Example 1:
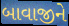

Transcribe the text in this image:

બાવાજીને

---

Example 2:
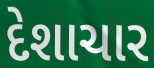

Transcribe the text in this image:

દેશાચાર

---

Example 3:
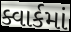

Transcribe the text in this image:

ક્વાર્કમાં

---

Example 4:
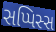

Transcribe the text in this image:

સપ્પિસ્સ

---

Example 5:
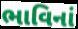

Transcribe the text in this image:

ભાવિનાં